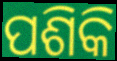
ପଶିକି